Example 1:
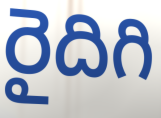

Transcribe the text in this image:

రైదిగి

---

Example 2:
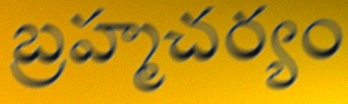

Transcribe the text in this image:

బ్రహ్మచర్యం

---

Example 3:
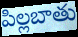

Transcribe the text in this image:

పిల్లబాతు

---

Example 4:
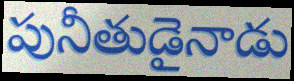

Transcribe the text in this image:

పునీతుడైనాడు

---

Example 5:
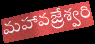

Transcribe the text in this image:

మహావజ్రేశ్వరి